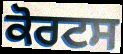
ਕੋਰਟਸ